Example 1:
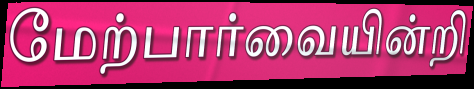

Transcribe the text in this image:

மேற்பார்வையின்றி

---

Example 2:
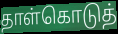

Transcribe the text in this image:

தாள்கொடுத்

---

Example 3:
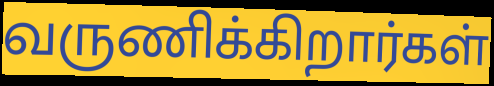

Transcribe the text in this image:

வருணிக்கிறார்கள்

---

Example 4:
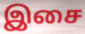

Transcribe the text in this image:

இசை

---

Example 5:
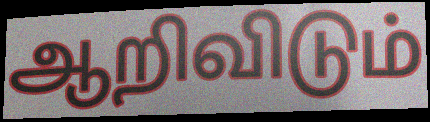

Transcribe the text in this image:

ஆறிவிடும்